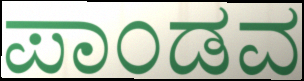
ಪಾಂಡವ